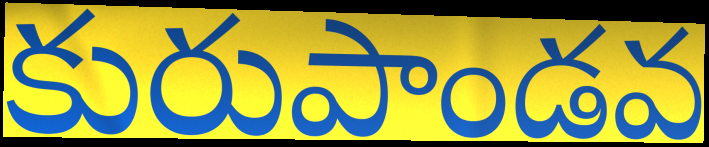
కురుపాండవ